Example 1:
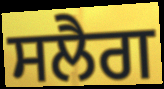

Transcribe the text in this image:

ਸਲੈਗ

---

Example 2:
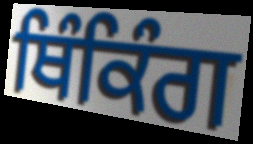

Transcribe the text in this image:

ਥਿੰਕਿੰਗ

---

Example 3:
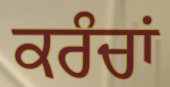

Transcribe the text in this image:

ਕਰੰਚਾਂ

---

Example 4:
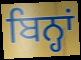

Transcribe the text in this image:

ਬਿਨ੍ਹਾਂ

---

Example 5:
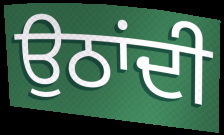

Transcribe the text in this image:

ਉਠਾਂਦੀ